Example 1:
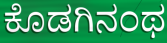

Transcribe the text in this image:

ಕೊಡಗಿನಂಥ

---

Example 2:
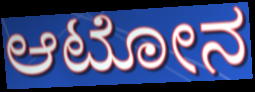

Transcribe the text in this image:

ಆಟೋನ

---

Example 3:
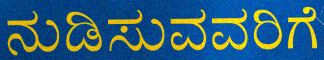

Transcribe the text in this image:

ನುಡಿಸುವವರಿಗೆ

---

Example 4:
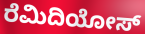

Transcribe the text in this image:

ರೆಮಿದಿಯೋಸ್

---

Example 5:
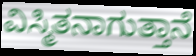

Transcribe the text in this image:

ವಿಸ್ಮಿತನಾಗುತ್ತಾನೆ